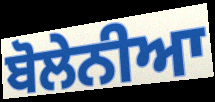
ਬੋਲੇਨੀਆ